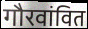
गौरवांवित